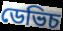
ডেভিচ